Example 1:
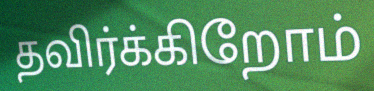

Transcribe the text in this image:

தவிர்க்கிறோம்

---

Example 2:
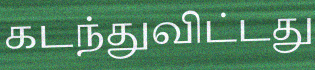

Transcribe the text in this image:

கடந்துவிட்டது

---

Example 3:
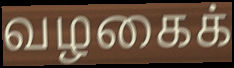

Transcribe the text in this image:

வழகைக்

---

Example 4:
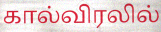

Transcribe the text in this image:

கால்விரலில்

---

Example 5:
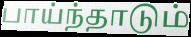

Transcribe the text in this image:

பாய்ந்தாடும்